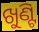
ଖୁଣ୍ଟି